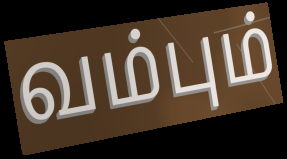
வம்பும்